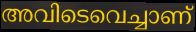
അവിടെവെച്ചാണ്